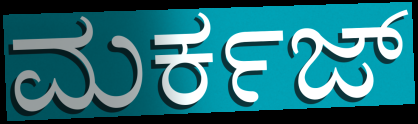
ಮರ್ಕಜ್